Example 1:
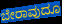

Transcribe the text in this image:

ಬೇರಾವುದೂ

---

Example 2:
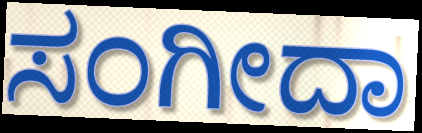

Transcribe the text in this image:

ಸಂಗೀದಾ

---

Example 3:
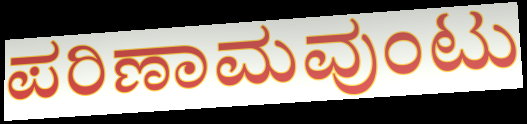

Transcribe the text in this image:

ಪರಿಣಾಮವುಂಟು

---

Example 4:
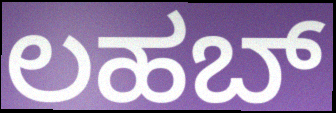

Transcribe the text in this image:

ಲಹಬ್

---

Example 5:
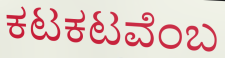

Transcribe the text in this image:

ಕಟಕಟವೆಂಬ